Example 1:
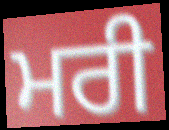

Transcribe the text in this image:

ਮਰੀ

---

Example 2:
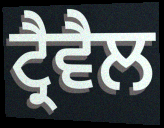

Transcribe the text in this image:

ਟ੍ਰੈਵੈਲ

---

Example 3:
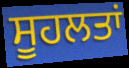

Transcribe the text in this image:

ਸੂਹਲਤਾਂ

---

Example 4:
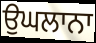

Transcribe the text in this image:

ਉਘਲਾਨਾ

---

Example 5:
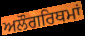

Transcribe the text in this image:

ਅਲੌਗਰਿਥਮਾਂ